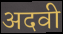
अदवी